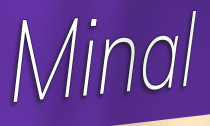
Minal